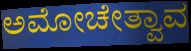
ಅಮೋಚೇತ್ವಾವ